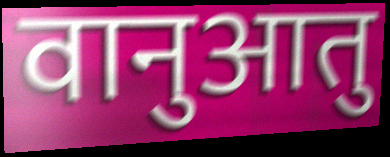
वानुआतु